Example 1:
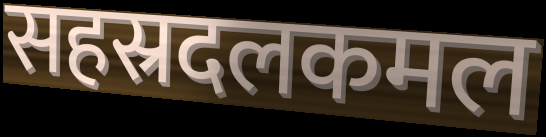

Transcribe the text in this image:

सहस्रदलकमल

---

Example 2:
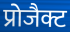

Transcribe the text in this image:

प्रोजैक्ट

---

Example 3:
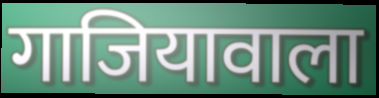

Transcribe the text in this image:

गाजियावाला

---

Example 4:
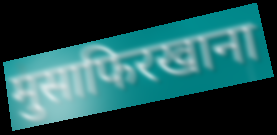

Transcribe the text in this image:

मुसाफिरखाना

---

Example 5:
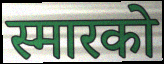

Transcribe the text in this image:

स्मारको